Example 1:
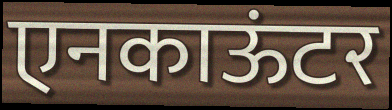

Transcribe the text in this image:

एनकाऊंटर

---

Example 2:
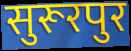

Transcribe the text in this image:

सुरूरपुर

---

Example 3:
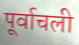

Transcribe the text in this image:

पूर्वाचली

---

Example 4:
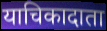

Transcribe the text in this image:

याचिकादाता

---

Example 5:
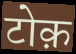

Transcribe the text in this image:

टोक़